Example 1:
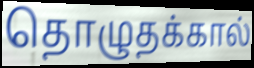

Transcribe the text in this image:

தொழுதக்கால்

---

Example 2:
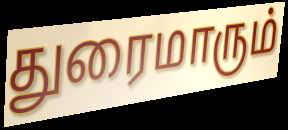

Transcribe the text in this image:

துரைமாரும்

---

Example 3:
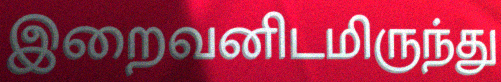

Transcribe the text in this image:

இறைவனிடமிருந்து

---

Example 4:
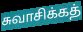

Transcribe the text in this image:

சுவாசிக்கத்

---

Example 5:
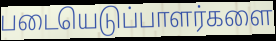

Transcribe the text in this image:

படையெடுப்பாளர்களை